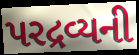
પરદ્રવ્યની